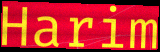
Harim